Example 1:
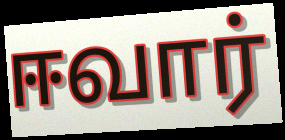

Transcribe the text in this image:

ஈவார்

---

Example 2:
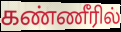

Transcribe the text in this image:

கண்ணீரில்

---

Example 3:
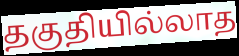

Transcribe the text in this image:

தகுதியில்லாத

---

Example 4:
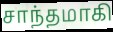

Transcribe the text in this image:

சாந்தமாகி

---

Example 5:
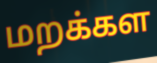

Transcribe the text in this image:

மறக்கள